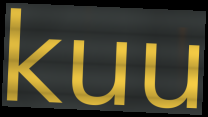
kuu